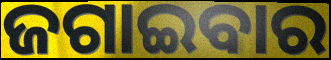
ଜଗାଇବାର